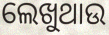
ଲେଖୁଥାଉ